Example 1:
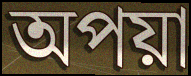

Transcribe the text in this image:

অপয়া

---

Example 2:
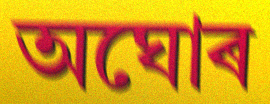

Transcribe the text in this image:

অঘোৰ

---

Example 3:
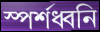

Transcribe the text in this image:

স্পৰ্শধ্বনি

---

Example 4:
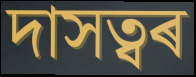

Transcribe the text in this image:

দাসত্বৰ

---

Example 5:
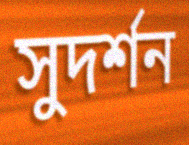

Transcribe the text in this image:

সুদৰ্শন